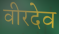
वीरदेव